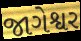
જાગેશ્વર